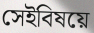
সেইবিষয়ে